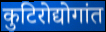
कुटिरोद्योगांत